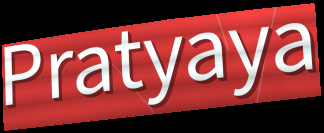
Pratyaya